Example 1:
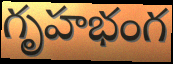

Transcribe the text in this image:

గృహభంగ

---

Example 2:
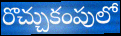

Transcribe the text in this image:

రొచ్చుకంపులో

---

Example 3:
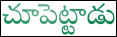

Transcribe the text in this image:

చూపెట్టాడు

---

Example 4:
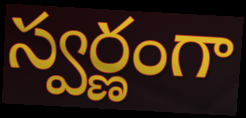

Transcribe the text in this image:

స్వర్ణంగా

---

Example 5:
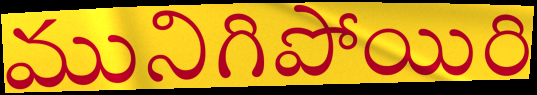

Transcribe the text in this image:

మునిగిపోయిరి